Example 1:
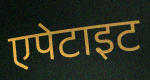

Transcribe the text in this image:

एपेटाइट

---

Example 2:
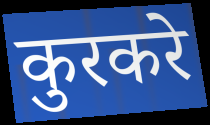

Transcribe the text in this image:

कुरकरे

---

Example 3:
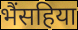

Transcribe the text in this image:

भैंसहिया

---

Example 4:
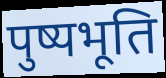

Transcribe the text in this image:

पुष्यभूति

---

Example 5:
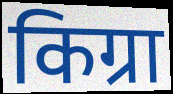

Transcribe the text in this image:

किग्रा